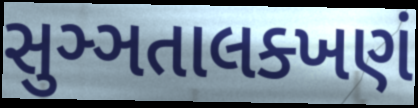
સુઞ્ઞતાલક્ખણં